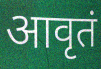
आवृतं